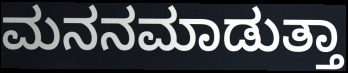
ಮನನಮಾಡುತ್ತಾ